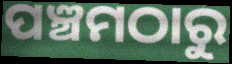
ପଞ୍ଚମଠାରୁ